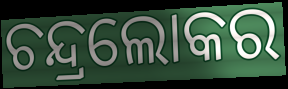
ଚନ୍ଦ୍ରଲୋକର